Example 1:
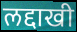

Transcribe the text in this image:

लद्दाखी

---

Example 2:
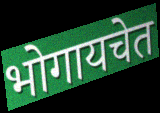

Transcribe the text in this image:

भोगायचेत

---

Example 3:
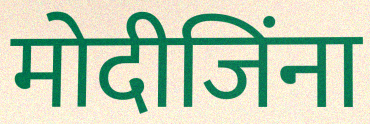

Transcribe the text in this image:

मोदीजिंना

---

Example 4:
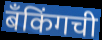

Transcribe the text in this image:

बँकिंगची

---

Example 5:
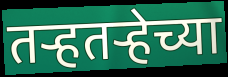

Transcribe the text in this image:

तऱ्हतऱ्हेच्या